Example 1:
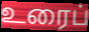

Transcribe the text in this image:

உரைப்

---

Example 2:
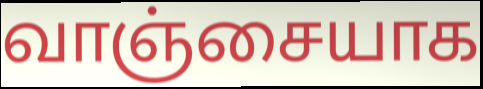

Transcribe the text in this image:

வாஞ்சையாக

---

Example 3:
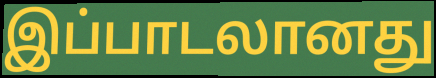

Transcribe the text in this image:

இப்பாடலானது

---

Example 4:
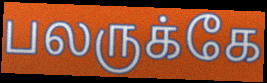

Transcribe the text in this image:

பலருக்கே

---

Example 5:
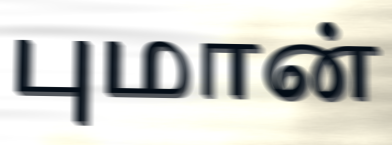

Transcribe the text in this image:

புமான்